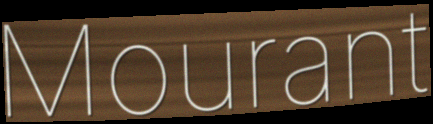
Mourant